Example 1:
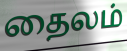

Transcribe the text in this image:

தைலம்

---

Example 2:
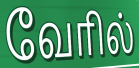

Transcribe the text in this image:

வேரில்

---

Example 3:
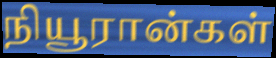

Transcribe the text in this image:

நியூரான்கள்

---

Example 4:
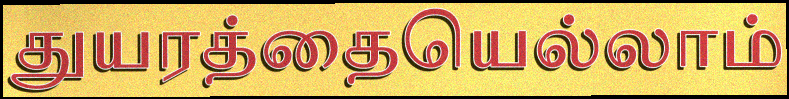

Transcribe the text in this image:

துயரத்தையெல்லாம்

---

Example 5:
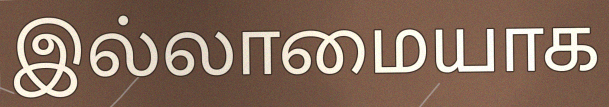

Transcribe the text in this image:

இல்லாமையாக